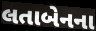
લતાબેનના